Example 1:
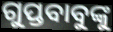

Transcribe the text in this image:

ଗୁପ୍ତବାବୁଙ୍କୁ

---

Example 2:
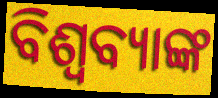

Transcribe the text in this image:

ବିଶ୍ୱବ୍ୟାଙ୍କ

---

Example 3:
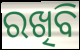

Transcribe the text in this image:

ରଖିବି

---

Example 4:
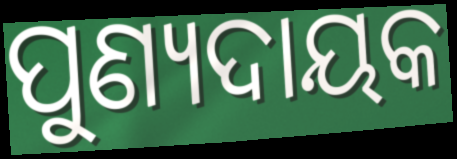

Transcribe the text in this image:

ପୁଣ୍ୟଦାୟକ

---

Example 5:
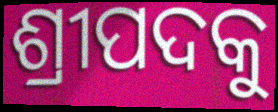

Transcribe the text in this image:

ଶ୍ରୀପଦକୁ